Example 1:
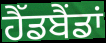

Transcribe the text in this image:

ਹੈੱਡਬੈਂਡਾਂ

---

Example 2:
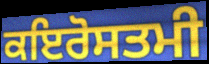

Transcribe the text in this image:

ਕਇਰੋਸਤਮੀ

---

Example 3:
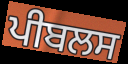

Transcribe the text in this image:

ਪੀਬਲਸ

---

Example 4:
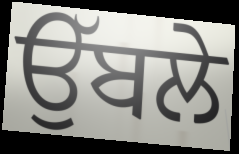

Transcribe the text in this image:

ਉੱਬਲੇ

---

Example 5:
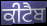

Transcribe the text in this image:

ਕੀਟੈਬ